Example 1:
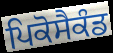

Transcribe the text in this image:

ਪਿਕੋਸੈਕੰਡ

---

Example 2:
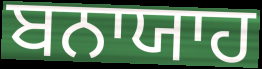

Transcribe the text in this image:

ਬਨਾਯਾਹ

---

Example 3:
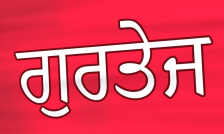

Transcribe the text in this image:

ਗੁਰਤੇਜ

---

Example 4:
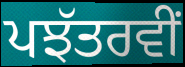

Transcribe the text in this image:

ਪਝੱਤਰਵੀਂ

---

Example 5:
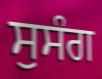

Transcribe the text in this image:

ਸੁਸੰਗ